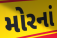
મોરનાં